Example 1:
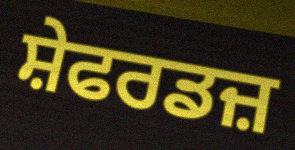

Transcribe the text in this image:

ਸ਼ੇਫਰਡਜ਼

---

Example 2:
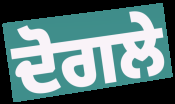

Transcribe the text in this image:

ਦੋਗਲੇ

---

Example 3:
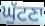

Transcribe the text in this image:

ਘੁੱਟਣਾ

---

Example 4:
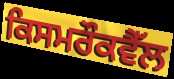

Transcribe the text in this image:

ਕਿਸਮਰੌਕਵੈੱਲ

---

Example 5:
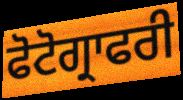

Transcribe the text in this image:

ਫੋਟੋਗ੍ਰਾਫਰੀ